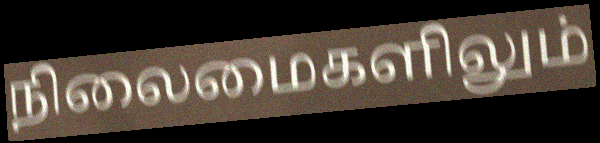
நிலைமைகளிலும்